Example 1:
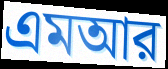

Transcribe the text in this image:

এমআর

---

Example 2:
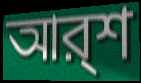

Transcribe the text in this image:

আর্‌শ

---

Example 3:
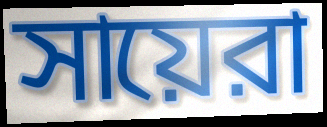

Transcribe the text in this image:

সায়েরা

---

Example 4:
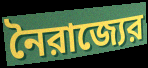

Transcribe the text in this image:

নৈরাজ্যের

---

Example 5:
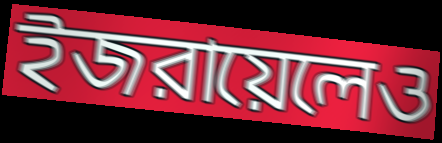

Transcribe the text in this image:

ইজরায়েলেও